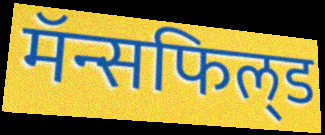
मॅन्सफिल्ड